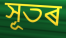
সূতৰ